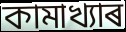
কামাখ্যাৰ